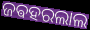
ଜଵହରଲାଲ